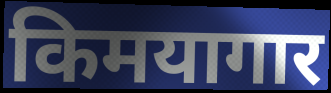
किमयागार